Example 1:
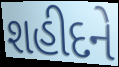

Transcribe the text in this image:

શહીદને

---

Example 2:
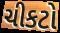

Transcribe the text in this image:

ચીકટો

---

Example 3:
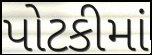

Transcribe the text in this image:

પોટકીમાં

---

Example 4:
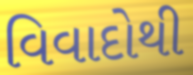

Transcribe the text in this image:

વિવાદોથી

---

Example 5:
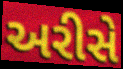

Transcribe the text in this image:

અરીસે